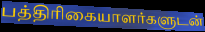
பத்திரிகையாளர்களுடன்